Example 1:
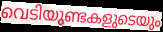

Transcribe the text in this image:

വെടിയുണ്ടകളുടെയും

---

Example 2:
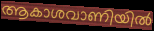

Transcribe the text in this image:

ആകാശവാണിയിൽ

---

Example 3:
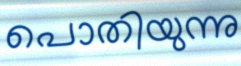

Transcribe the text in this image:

പൊതിയുന്നു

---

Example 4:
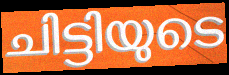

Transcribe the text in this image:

ചിട്ടിയുടെ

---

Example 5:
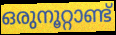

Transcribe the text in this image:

ഒരുനൂറ്റാണ്ട്